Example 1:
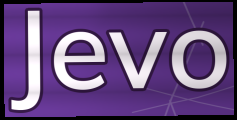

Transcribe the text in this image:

Jevo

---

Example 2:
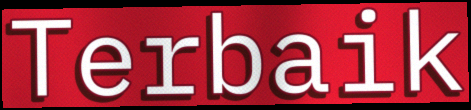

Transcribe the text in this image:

Terbaik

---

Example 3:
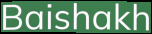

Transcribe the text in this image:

Baishakh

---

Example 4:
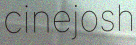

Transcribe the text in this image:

cinejosh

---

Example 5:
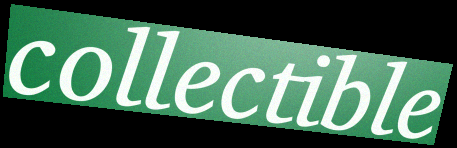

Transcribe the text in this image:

collectible